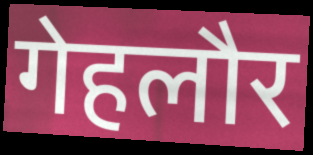
गेहलौर